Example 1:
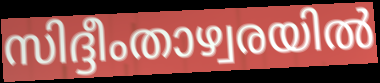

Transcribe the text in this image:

സിദ്ദീംതാഴ്വരയിൽ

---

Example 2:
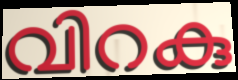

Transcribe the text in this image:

വിറകു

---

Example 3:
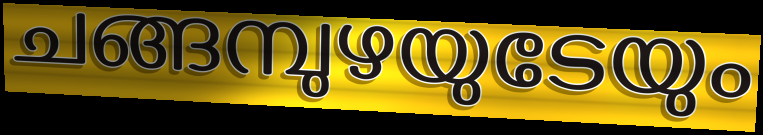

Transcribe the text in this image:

ചങ്ങമ്പുഴയുടേയും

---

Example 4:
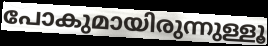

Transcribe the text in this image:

പോകുമായിരുന്നുള്ളൂ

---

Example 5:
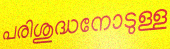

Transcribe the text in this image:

പരിശുദ്ധനോടുള്ള